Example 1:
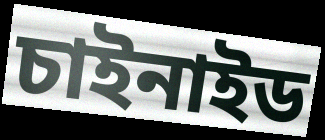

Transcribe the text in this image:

চাইনাইড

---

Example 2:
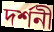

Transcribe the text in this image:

দৰ্শনী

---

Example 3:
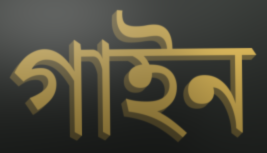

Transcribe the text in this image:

গাইন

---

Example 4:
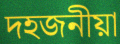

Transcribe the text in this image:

দহজনীয়া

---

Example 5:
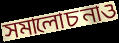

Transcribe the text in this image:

সমালোচনাও